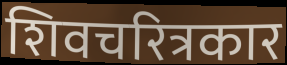
शिवचरित्रकार